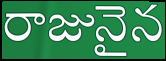
రాజునైన